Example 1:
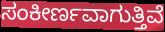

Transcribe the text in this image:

ಸಂಕೀರ್ಣವಾಗುತ್ತಿವೆ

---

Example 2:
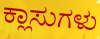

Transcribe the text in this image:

ಕ್ಲಾಸುಗಳು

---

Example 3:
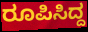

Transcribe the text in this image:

ರೂಪಿಸಿದ್ದ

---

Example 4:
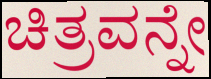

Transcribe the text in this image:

ಚಿತ್ರವನ್ನೇ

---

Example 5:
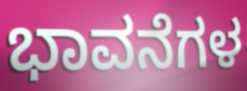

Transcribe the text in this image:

ಭಾವನೆಗಳ